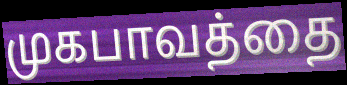
முகபாவத்தை